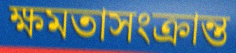
ক্ষমতাসংক্রান্ত